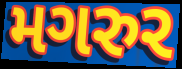
મગરુર